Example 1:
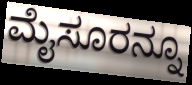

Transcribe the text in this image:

ಮೈಸೂರನ್ನೂ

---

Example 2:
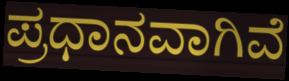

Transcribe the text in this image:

ಪ್ರಧಾನವಾಗಿವೆ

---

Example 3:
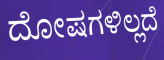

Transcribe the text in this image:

ದೋಷಗಳಿಲ್ಲದೆ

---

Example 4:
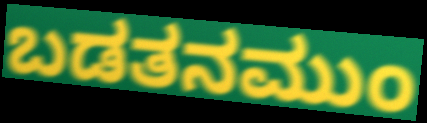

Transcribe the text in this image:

ಬಡತನಮುಂ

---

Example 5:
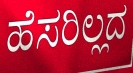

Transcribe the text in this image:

ಹೆಸರಿಲ್ಲದ